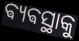
ଵ୍ୟଵସ୍ଥାକୁ